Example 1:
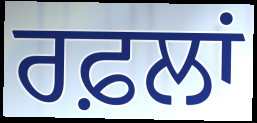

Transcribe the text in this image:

ਰਫ਼ਲਾਂ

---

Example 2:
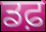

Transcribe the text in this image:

ਡਫ਼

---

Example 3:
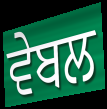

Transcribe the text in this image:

ਵੇਬਲ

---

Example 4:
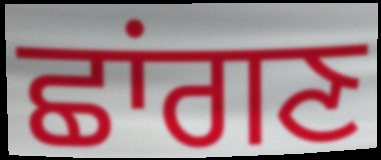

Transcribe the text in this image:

ਛਾਂਗਣ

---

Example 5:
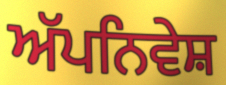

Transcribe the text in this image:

ਅੱਪਨਿਵੇਸ਼